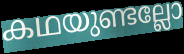
കഥയുണ്ടല്ലോ